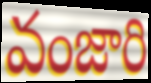
వంజారి